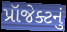
પ્રૉજેક્ટનું